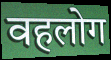
वहलोग